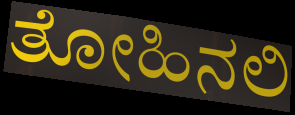
ತೋಹಿನಲಿ